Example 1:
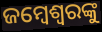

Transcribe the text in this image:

ଜମ୍ବେଶ୍ୱରଙ୍କୁ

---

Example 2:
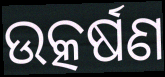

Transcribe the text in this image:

ଉତ୍କର୍ଷଣ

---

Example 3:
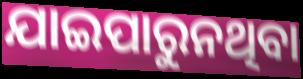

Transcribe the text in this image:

ଯାଇପାରୁନଥିବା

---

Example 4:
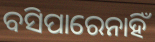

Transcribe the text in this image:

ବସିପାରେନାହିଁ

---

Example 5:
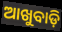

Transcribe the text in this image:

ଆଖୁବାଡ଼ି